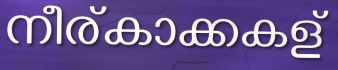
നീര്കാക്കകള്